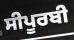
ਸੀਪੂਰਬੀ